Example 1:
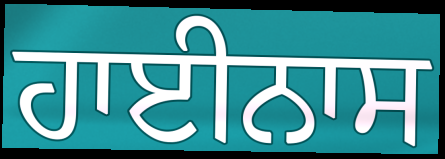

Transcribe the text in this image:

ਹਾਈਨਾਸ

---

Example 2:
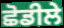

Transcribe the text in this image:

ਛੋਡੀਲੇ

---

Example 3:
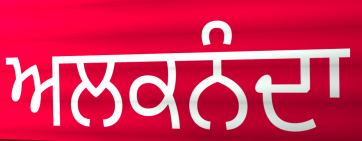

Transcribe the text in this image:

ਅਲਕਨੰਦਾ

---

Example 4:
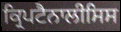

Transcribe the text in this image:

ਕ੍ਰਿਪਟੈਨਾਲੀਸਿਸ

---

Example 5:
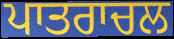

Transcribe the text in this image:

ਪਾਤਰਾਚਲ